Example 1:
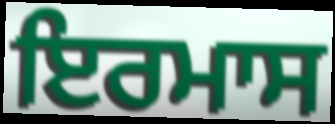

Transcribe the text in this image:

ਇਰਮਾਸ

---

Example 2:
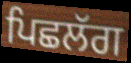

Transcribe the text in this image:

ਪਿਛਲੱਗ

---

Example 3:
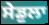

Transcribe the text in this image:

ਸੇਡੁਲਾ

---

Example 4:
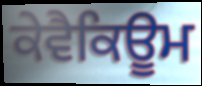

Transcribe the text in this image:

ਕੇਵੈਕਿਊਮ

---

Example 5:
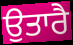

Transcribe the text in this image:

ਉਤਾਰੈ